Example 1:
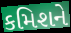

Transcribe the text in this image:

કમિશને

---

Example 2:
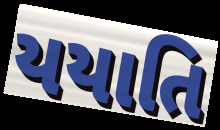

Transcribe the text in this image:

યયાતિ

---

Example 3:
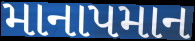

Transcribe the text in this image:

માનાપમાન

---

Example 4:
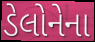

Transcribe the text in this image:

ડેલોનેના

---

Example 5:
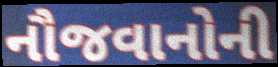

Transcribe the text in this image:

નૌજવાનોની